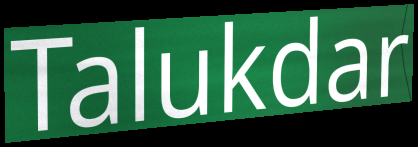
Talukdar